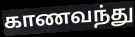
காணவந்து